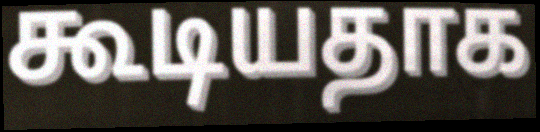
கூடியதாக